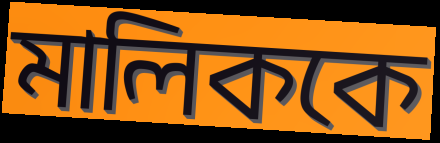
মালিককে